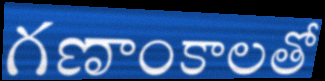
గణాంకాలతో